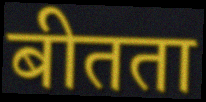
बीतता